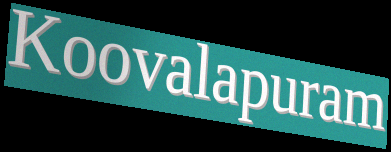
Koovalapuram